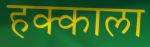
हक्काला